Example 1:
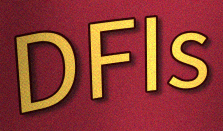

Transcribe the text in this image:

DFIs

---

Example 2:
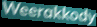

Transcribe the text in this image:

Weerakkody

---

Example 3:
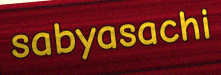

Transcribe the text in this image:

sabyasachi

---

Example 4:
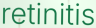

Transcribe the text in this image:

retinitis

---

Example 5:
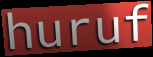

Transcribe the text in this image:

huruf